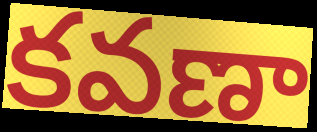
కవణా